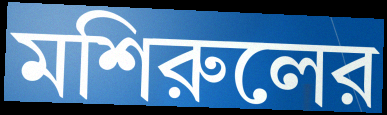
মশিরুলের